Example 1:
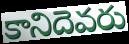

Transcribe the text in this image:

కానిదెవరు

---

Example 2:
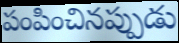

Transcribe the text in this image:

పంపించినప్పుడు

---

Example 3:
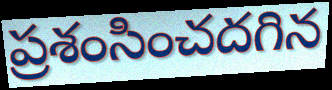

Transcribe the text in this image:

ప్రశంసించదగిన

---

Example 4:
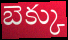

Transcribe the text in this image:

బెక్కు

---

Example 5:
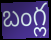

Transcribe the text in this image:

బంగ్ల